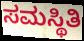
ಸಮಸ್ಥಿತಿ